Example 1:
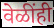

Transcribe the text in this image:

वेळींही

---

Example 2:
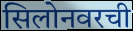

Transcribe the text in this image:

सिलोनवरची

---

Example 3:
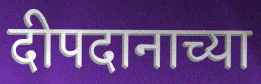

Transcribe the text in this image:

दीपदानाच्या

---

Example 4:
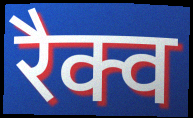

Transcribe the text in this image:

रैक्व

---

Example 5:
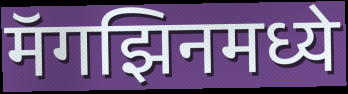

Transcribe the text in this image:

मॅगझिनमध्ये